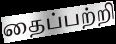
தைப்பற்றி